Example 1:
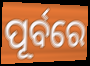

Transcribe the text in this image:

ପୂର୍ବରେ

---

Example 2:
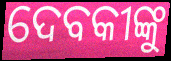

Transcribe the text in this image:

ଦେବକୀଙ୍କୁ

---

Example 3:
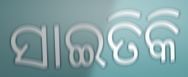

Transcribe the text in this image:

ସାଇତିକି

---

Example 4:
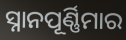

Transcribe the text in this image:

ସ୍ନାନପୂର୍ଣ୍ଣିମାର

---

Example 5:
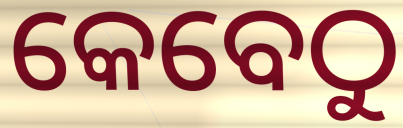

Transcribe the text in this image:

କେବେଠୁ